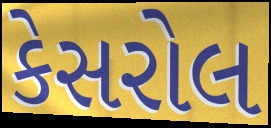
કેસરોલ